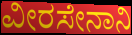
ವೀರಸೇನಾನಿ